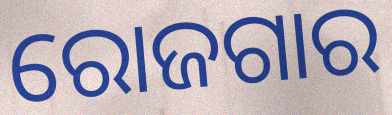
ରୋଜଗାର